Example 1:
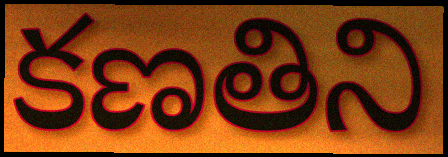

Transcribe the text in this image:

కణతిని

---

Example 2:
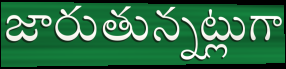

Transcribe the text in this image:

జారుతున్నట్లుగా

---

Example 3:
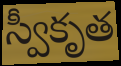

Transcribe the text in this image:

స్వీకృత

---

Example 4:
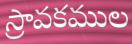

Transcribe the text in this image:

స్రావకముల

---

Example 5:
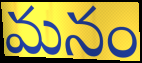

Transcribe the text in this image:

మనం